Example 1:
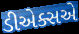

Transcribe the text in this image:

ડીએક્સએ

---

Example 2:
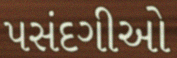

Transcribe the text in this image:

પસંદગીઓ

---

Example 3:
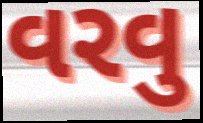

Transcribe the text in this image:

વરવુ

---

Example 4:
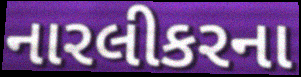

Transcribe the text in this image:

નારલીકરના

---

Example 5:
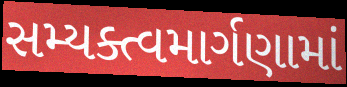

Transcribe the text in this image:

સમ્યક્ત્વમાર્ગણામાં